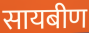
सायबीण